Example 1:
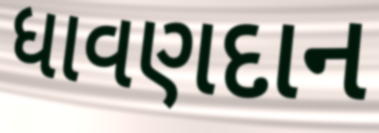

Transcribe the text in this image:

ધાવણદાન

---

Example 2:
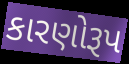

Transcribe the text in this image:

કારણોરૂપ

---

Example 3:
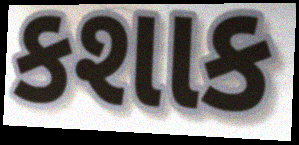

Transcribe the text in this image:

કશાક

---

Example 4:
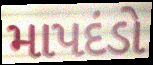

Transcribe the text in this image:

માપદંડો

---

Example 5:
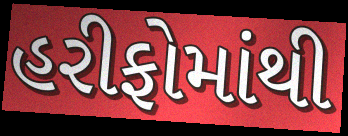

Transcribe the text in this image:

હરીફોમાંથી